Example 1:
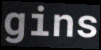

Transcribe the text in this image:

gins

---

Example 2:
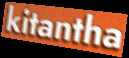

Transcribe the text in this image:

kitantha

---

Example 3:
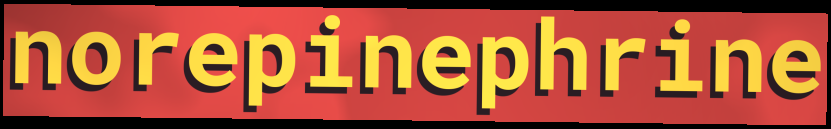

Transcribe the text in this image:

norepinephrine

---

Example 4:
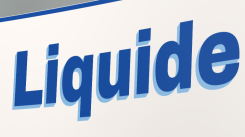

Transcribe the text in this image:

Liquide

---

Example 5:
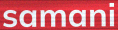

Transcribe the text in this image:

samani